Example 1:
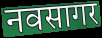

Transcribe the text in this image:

नवसागर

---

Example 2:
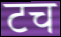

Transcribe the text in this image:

टच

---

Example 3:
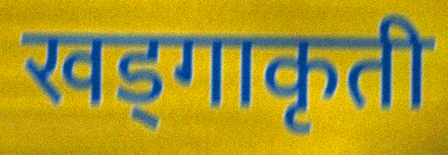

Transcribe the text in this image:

खड्गाकृती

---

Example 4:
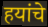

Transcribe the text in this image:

हयांचे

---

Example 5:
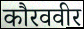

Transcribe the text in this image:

कौरववीर